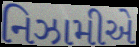
નિઝામીએ